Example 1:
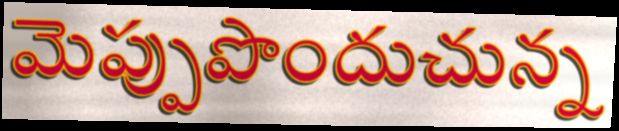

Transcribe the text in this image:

మెప్పుపొందుచున్న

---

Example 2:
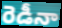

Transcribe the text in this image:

రెడీనా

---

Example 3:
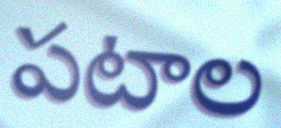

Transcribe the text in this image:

పటాల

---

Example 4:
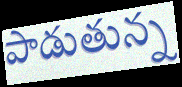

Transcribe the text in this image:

పాడుతున్న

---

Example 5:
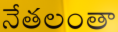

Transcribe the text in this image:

నేతలంతా